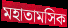
মহাতামসিক